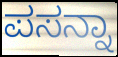
ಪಸನ್ನಾ